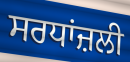
ਸਰਧਾਂਜ਼ਲੀ